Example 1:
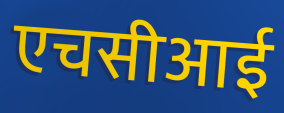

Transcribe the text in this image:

एचसीआई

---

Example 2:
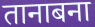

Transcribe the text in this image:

तानाबना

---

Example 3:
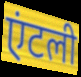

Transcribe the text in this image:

एंटली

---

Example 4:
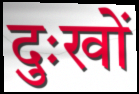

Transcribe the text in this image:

दुःखों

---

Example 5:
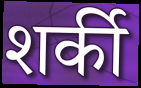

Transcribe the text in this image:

शर्की